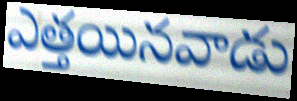
ఎత్తయినవాడు